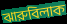
ঝাৰুবিলাক